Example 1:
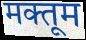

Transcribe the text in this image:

मक्तूम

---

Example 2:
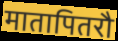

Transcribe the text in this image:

मातापितरौ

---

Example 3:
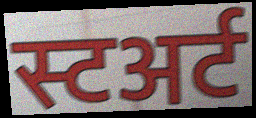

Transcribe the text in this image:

स्टअर्ट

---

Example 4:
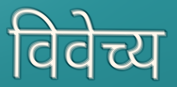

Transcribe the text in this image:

विवेच्य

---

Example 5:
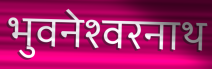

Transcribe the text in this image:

भुवनेश्वरनाथ